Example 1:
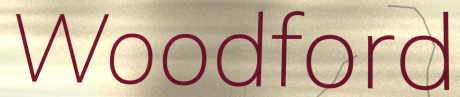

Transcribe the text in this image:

Woodford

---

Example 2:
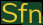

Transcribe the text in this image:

Sfn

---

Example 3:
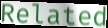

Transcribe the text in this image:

Related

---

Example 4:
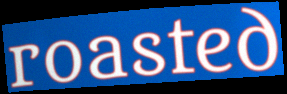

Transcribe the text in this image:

roasted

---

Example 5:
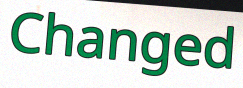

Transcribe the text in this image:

Changed